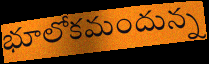
భూలోకమందున్న